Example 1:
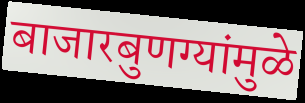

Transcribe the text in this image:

बाजारबुणग्यांमुळे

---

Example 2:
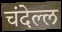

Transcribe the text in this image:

चंदेल्ल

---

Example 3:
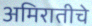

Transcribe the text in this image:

अमिरातीचे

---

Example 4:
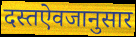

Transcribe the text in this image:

दस्तऐवजानुसार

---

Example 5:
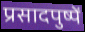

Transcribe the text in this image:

प्रसादपुष्पें